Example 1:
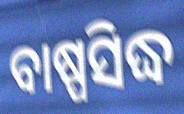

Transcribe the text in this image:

ବାଷ୍ପସିଦ୍ଧ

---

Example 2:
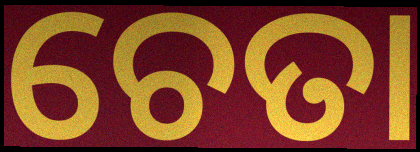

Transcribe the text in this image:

ଚେତା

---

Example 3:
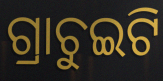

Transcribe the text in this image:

ଗ୍ରାଚୁଇଟି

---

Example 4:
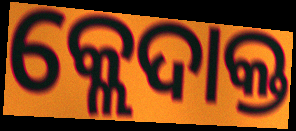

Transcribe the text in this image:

କ୍ଲେଦାକ୍ତ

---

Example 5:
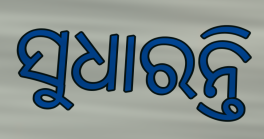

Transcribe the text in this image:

ସୁଧାରନ୍ତି